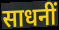
साधनीं